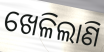
ଖେଳିଲାଣି